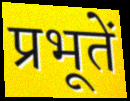
प्रभूतें